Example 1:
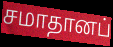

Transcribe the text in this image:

சமாதானப்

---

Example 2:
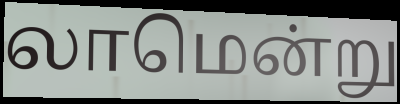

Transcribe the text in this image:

லாமென்று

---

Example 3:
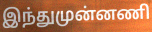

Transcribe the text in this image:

இந்துமுன்னணி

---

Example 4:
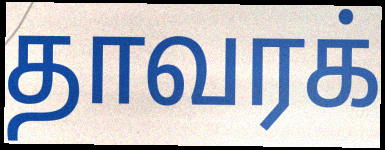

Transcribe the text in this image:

தாவரக்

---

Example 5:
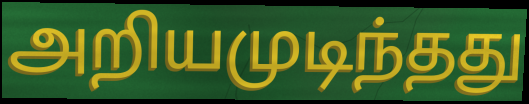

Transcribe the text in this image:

அறியமுடிந்தது